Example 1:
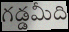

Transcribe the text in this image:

గడ్డమీది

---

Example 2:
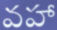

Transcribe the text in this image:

వహా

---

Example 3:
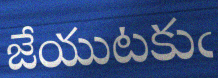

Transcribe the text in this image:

జేయుటకుఁ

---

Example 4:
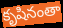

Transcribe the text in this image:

కృషినంతా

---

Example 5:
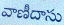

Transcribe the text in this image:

వాణీదాసు